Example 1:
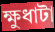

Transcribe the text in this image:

ক্ষুধাটা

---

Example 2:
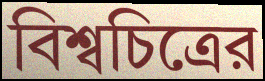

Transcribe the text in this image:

বিশ্বচিত্রের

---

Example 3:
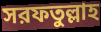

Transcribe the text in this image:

সরফতুল্লাহ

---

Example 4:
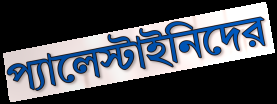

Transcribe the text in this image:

প্যালেস্টাইনিদের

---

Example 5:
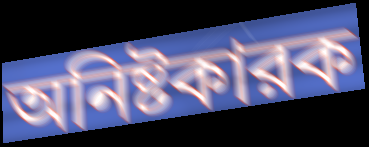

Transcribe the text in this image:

অনিষ্টকারক